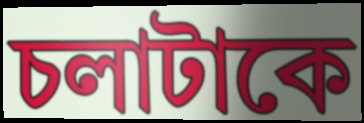
চলাটাকে